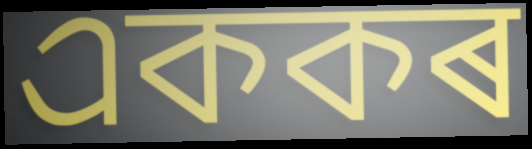
এককৰ